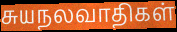
சுயநலவாதிகள்